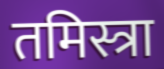
तमिस्त्रा